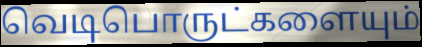
வெடிபொருட்களையும்